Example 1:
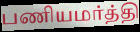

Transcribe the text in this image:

பணியமர்த்தி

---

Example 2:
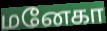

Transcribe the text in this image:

மனேகா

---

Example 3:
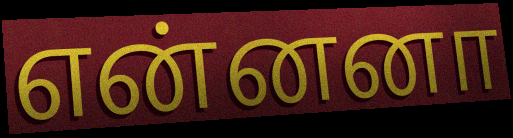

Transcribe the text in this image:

என்னனா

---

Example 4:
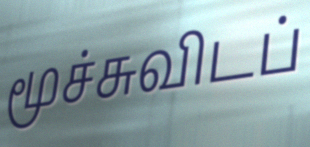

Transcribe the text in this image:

மூச்சுவிடப்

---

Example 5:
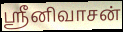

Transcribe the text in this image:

ஸ்ரீனிவாசன்